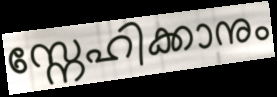
സ്നേഹിക്കാനും